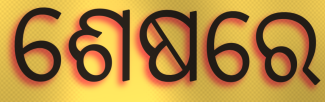
ଶେଷରେ